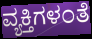
ವ್ಯಕ್ತಿಗಳಂತೆ